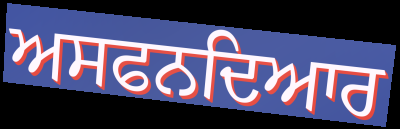
ਅਸਫਨਦਿਆਰ